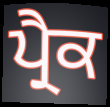
ਪ੍ਰੈਕ